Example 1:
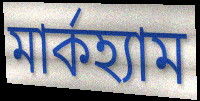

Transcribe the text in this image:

মার্কহ্যাম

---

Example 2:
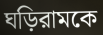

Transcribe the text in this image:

ঘড়িরামকে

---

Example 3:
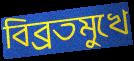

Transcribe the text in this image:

বিব্রতমুখে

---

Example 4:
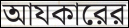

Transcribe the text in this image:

আযকারের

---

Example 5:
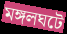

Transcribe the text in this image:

মঙ্গলঘটে